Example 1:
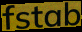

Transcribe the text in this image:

fstab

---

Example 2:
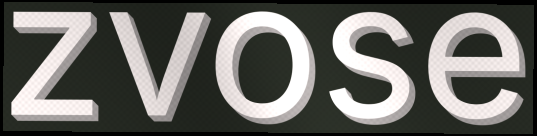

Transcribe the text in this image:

zvose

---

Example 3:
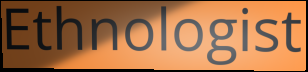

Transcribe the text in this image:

Ethnologist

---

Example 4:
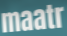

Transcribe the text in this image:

maatr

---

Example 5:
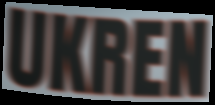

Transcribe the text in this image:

UKREN